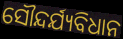
ସୌନ୍ଦର୍ଯ୍ୟବିଧାନ